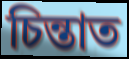
চিন্তাত